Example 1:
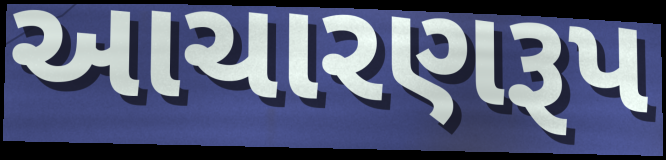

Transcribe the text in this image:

આચારણરૂપ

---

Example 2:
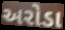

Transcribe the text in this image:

અરોડા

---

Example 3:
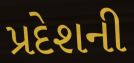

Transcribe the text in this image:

પ્રદેશની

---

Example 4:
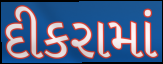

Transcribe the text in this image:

દીકરામાં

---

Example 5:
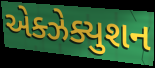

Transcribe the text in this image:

એક્ઝેક્યુશન